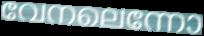
വേനലെന്നോ